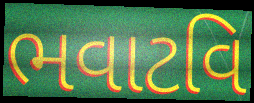
ભવાટવિ